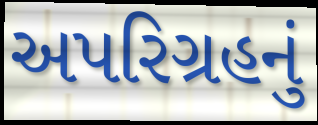
અપરિગ્રહનું